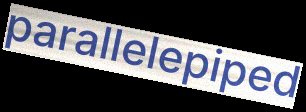
parallelepiped